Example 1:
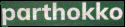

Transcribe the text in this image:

parthokko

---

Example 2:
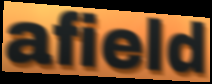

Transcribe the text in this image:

afield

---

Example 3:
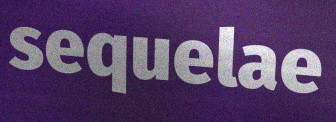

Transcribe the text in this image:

sequelae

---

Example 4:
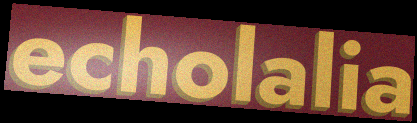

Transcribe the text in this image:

echolalia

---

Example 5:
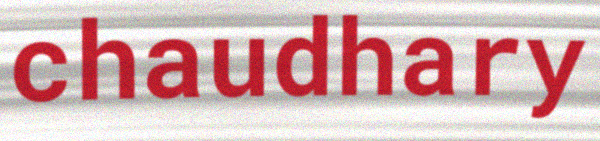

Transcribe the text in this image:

chaudhary